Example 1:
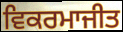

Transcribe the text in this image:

ਵਿਕਰਮਾਜੀਤ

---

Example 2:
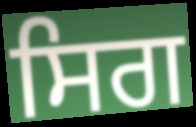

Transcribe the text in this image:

ਸਿਗ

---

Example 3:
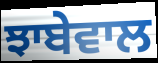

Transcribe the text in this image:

ਝਾਬੇਵਾਲ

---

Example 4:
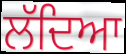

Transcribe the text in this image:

ਲੱਦਿਆ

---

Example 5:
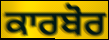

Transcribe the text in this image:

ਕਾਰਬੋਰ